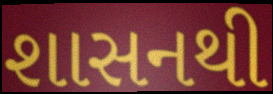
શાસનથી